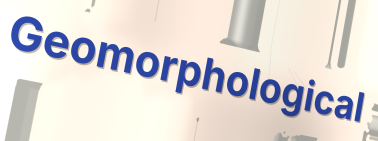
Geomorphological